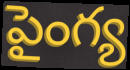
పైంగ్య